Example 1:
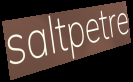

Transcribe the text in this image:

saltpetre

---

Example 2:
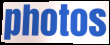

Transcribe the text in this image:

photos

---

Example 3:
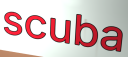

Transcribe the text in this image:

scuba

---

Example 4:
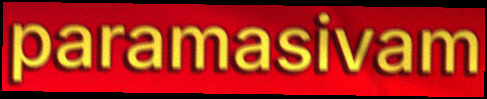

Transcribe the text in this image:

paramasivam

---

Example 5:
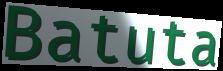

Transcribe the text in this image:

Batuta